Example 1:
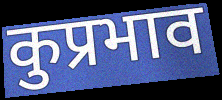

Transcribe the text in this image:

कुप्रभाव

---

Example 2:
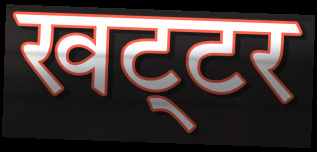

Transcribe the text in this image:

खट्‌टर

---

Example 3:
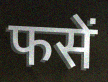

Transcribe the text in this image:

फसें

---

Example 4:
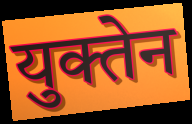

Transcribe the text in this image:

युक्तेन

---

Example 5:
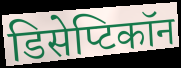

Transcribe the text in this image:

डिसेप्टिकॉन